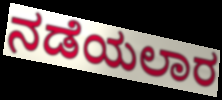
ನಡೆಯಲಾರ